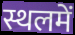
स्थलमें